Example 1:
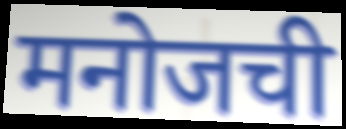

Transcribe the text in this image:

मनोजची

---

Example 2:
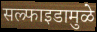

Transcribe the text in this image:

सल्फाइडामुळे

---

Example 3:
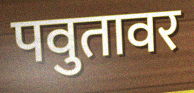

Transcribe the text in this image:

पवुतावर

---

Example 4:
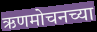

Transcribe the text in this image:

ऋणमोचनच्या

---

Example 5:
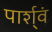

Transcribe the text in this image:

पार्श्वं